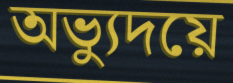
অভ্যুদয়ে